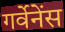
गर्वेनेंस